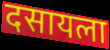
दसायला